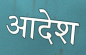
आदेश